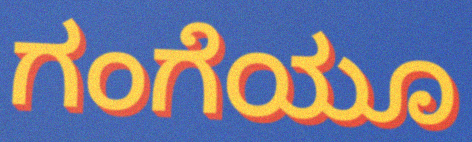
ಗಂಗೆಯೂ